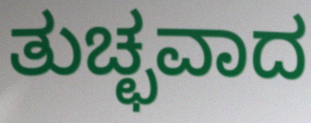
ತುಚ್ಛವಾದ